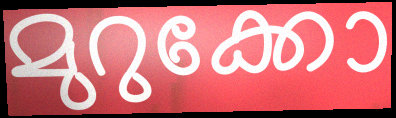
മുറുക്കോ